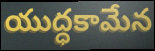
యుద్ధకామేన